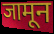
जामून